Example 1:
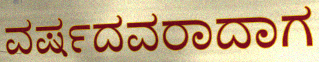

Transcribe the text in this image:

ವರ್ಷದವರಾದಾಗ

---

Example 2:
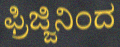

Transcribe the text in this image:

ಫ್ರಿಜ್ಜಿನಿಂದ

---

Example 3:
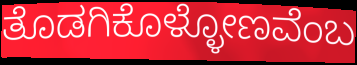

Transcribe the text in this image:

ತೊಡಗಿಕೊಳ್ಳೋಣವೆಂಬ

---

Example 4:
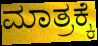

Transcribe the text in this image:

ಮಾತ್ರಕ್ಕೆ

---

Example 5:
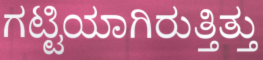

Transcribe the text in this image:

ಗಟ್ಟಿಯಾಗಿರುತ್ತಿತ್ತು